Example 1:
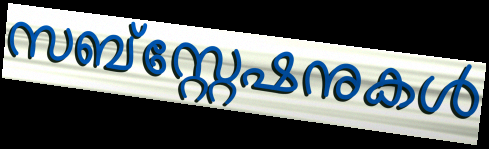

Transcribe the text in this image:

സബ്സ്റ്റേഷനുകൾ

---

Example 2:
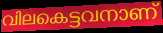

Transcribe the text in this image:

വിലകെട്ടവനാണ്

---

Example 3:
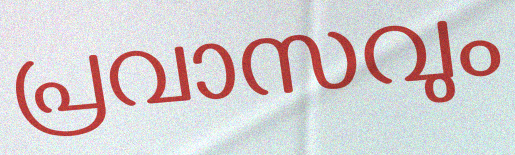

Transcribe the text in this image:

പ്രവാസവും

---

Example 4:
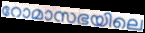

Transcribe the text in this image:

റോമാസഭയിലെ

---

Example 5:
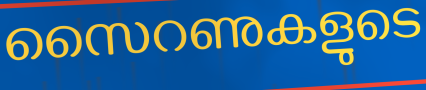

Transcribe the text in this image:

സൈറണുകളുടെ